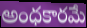
అంధకారమే